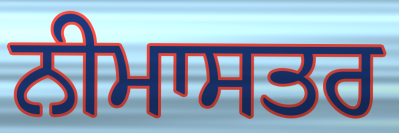
ਨੀਮਾਸਤਰ